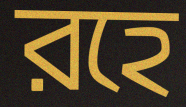
রহে